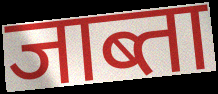
जाब्ता